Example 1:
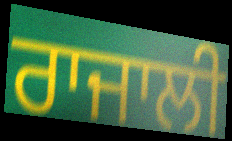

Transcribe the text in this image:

ਰਾਜਾਲੀ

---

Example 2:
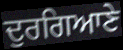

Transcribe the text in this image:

ਦੁਰਗਿਆਣੇ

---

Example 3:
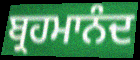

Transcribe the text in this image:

ਬ੍ਰਹਮਾਨੰਦ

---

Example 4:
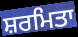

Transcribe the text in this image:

ਸ਼ਰਮਿਤਾ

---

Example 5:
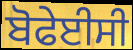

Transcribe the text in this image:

ਬੋਫੇਈਸੀ